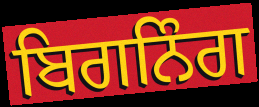
ਬਿਗਨਿੰਗ